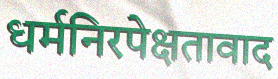
धर्मनिरपेक्षतावाद